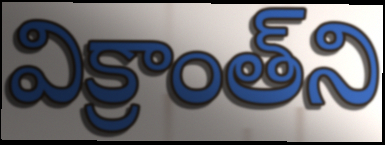
విక్రాంత్‌ని